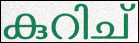
കുറിച്